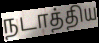
நடாத்திய